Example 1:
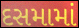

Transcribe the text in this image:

દસમામાં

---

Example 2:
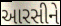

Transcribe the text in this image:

આરસીને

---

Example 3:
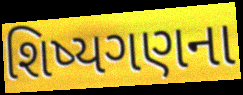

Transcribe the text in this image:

શિષ્યગણના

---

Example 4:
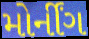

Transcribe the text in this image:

મોર્નીંગ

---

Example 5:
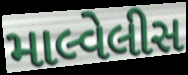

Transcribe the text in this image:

માલ્વેલીસ